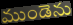
ముండెను